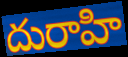
దురాహి